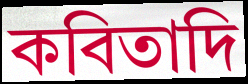
কবিতাদি